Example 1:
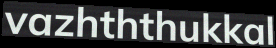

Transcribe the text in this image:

vazhththukkal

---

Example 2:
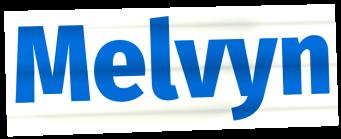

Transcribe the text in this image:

Melvyn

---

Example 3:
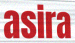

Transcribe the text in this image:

asira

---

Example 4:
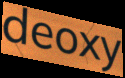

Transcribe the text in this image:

deoxy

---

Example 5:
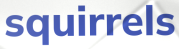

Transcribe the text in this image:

squirrels